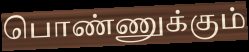
பொண்ணுக்கும்